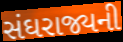
સંઘરાજ્યની